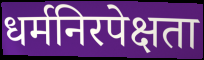
धर्मनिरपेक्षता